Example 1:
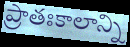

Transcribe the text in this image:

ప్రాతఃకాలాన్ని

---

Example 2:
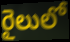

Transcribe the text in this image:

రైలులో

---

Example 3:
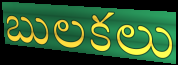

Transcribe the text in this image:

బులకలు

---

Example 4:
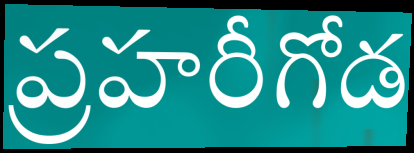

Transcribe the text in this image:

ప్రహరీగోడ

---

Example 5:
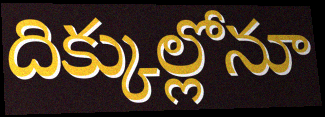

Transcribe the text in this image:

దిక్కుల్లోనూ